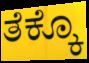
ತೆಕ್ಕೊ